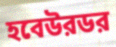
হবেউরডর